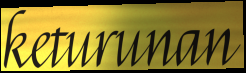
keturunan